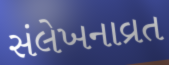
સંલેખનાવ્રત